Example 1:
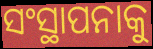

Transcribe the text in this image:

ସଂସ୍ଥାପନାକୁ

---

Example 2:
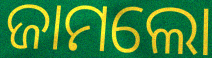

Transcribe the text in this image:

ଜାମଲୋ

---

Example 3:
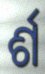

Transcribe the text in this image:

ର୍ଶ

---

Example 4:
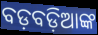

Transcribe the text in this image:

ବଡ଼ବଡ଼ିଆଙ୍କ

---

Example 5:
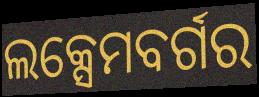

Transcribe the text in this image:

ଲକ୍ସେମବର୍ଗର